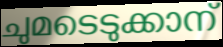
ചുമടെടുക്കാന്